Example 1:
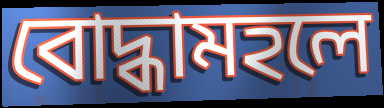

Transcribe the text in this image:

বোদ্ধামহলে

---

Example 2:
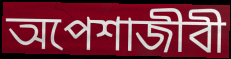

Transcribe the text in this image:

অপেশাজীবী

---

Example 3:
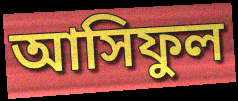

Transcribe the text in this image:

আসিফুল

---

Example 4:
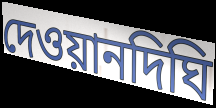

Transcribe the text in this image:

দেওয়ানদিঘি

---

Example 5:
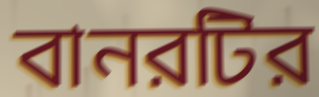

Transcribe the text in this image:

বানরটির